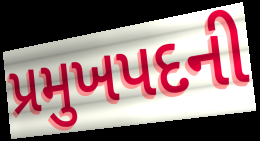
પ્રમુખપદની